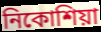
নিকোশিয়া